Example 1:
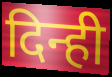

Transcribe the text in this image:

दिन्ही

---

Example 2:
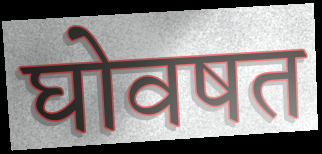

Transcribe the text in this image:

घोवषत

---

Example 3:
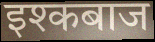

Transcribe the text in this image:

इश्कबाज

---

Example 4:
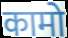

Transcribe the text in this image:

कामो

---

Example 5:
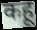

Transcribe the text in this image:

कहू